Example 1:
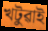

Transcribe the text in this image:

খটুৱাই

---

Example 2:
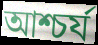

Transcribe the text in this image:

আশ্চৰ্য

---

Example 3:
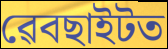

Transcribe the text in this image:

ৱেবছাইটত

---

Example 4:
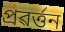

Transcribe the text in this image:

প্ৰৱৰ্ত্তন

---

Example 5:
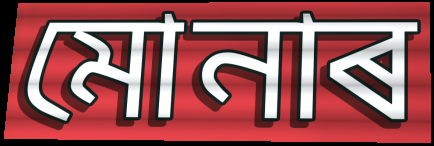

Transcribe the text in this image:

মোনাৰ